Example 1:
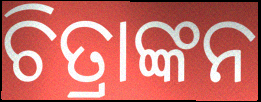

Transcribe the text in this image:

ଚିତ୍ରାଙ୍କନ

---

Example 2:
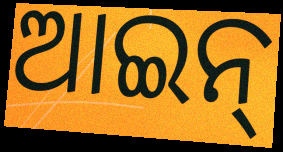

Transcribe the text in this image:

ଆଇନ୍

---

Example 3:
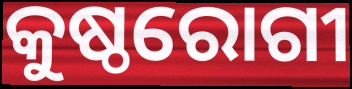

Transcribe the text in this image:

କୁଷ୍ଠରୋଗୀ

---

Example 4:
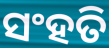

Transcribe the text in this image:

ସଂହତି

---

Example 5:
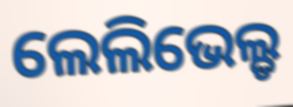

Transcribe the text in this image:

ଲେଲିଭେଲ୍ଡ